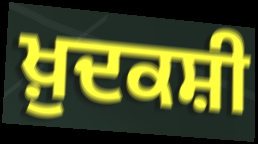
ਖ਼ੁਦਕਸ਼ੀ